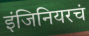
इंजिनियरचं